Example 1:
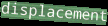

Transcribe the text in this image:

displacement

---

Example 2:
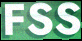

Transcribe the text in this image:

FSS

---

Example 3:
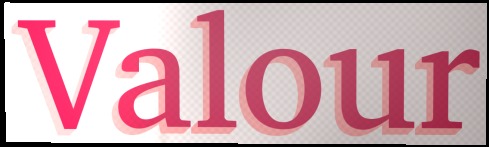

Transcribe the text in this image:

Valour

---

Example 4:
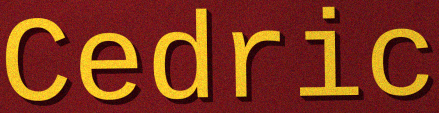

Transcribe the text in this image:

Cedric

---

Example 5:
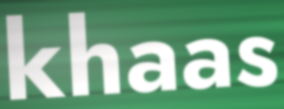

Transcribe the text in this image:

khaas